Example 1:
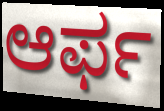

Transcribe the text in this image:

ಆರ್ಫ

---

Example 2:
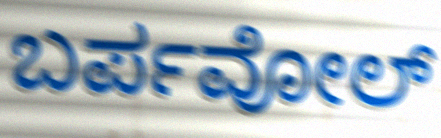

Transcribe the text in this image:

ಬರ್ಪವೋಲ್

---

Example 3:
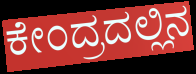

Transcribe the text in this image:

ಕೇಂದ್ರದಲ್ಲಿನ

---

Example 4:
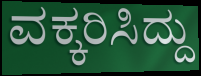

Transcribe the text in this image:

ವಕ್ಕರಿಸಿದ್ದು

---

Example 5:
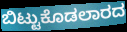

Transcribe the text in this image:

ಬಿಟ್ಟುಕೊಡಲಾರದ